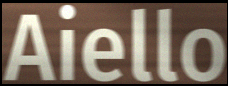
Aiello